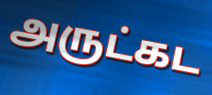
அருட்கட